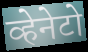
व्हेनेटो